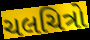
ચલચિત્રો